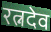
रत्नदेव